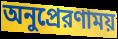
অনুপ্রেরণাময়